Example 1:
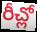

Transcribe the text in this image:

రీచ్లో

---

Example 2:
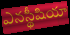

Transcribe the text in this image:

ఎనస్థీషియా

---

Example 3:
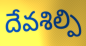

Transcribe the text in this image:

దేవశిల్పి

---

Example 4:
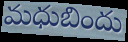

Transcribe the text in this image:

మధుబిందు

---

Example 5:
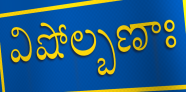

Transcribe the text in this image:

విషోల్బణాః